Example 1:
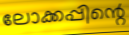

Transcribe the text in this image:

ലോക്കപ്പിന്റെ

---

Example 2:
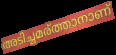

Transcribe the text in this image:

അടിച്ചമര്ത്താനാണ്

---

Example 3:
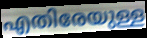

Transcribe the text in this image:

എതിരേയുള്ള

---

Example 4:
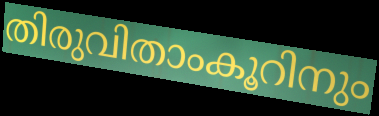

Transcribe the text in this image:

തിരുവിതാംകൂറിനും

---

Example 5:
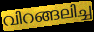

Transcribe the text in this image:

വിറങ്ങലിച്ച